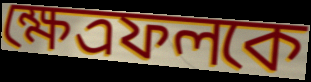
ক্ষেত্রফলকে